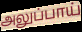
அலுப்பாய்